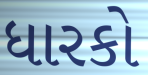
ધારકો